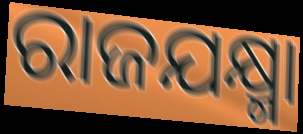
ରାଜଯକ୍ଷ୍ମା